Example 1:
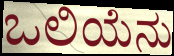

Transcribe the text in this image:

ಒಲಿಯೆನು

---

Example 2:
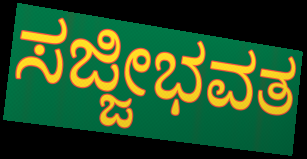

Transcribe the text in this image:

ಸಜ್ಜೀಭವತ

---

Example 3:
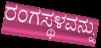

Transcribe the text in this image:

ರಂಗಸ್ಥಳವನ್ನು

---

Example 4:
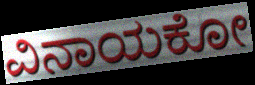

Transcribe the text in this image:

ವಿನಾಯಕೋ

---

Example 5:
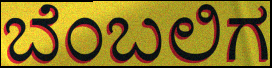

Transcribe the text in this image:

ಬೆಂಬಲಿಗ